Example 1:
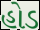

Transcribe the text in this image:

હોડ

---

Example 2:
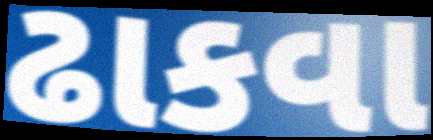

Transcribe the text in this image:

ઢાકવા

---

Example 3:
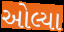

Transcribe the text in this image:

ઓલ્યા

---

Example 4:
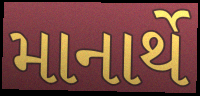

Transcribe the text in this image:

માનાર્થે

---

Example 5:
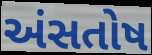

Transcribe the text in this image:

અંસતોષ